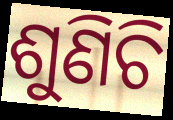
ଶୁଣିଚି